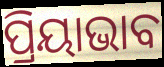
ପ୍ରିୟାଭାବ